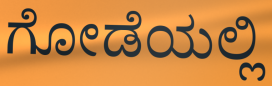
ಗೋಡೆಯಲ್ಲಿ